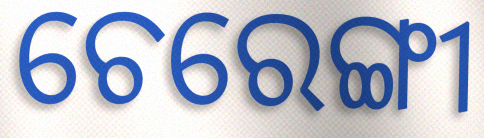
ଚେରେଙ୍ଗୀ